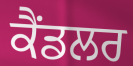
ਕੈਂਡਲਰ